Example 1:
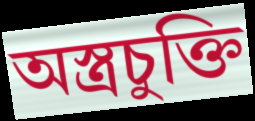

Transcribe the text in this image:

অস্ত্রচুক্তি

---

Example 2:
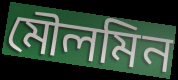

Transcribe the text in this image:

মৌলমিন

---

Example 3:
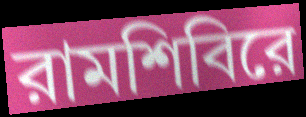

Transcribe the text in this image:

রামশিবিরে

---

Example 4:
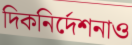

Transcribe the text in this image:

দিকনির্দেশনাও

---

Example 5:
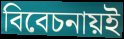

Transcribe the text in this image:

বিবেচনায়ই